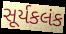
સૂર્યકલંક